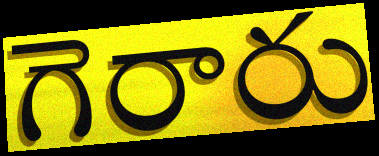
గెరారు